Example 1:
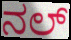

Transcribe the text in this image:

ನಲ್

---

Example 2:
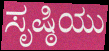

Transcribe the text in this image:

ಸೃಷ್ಠಿಯು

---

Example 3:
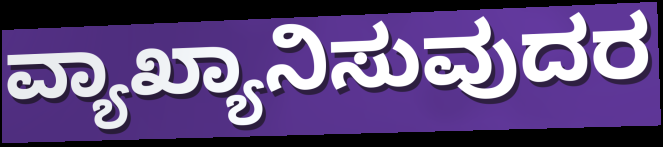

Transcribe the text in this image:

ವ್ಯಾಖ್ಯಾನಿಸುವುದರ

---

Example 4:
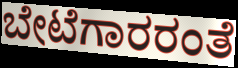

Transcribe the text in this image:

ಬೇಟೆಗಾರರಂತೆ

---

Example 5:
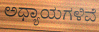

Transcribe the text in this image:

ಅಧ್ಯಾಯಗಳಿವೆ